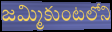
జమ్మికుంటలోని